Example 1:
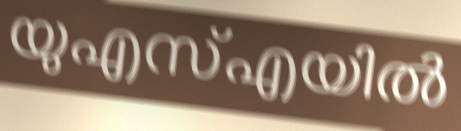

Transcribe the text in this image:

യുഎസ്എയിൽ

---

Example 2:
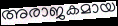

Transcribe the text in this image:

അരാജകമായ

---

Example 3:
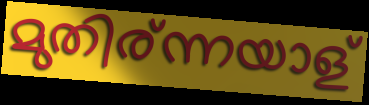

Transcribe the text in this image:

മുതിര്ന്നയാള്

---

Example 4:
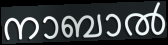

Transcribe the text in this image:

നാബാൽ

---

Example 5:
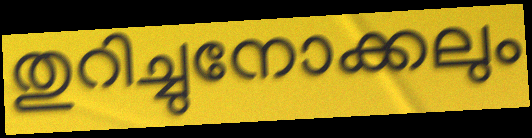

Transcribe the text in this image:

തുറിച്ചുനോക്കലും